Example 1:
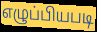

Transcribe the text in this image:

எழுப்பியபடி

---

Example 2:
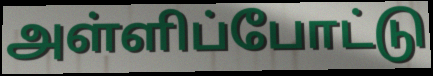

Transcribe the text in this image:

அள்ளிப்போட்டு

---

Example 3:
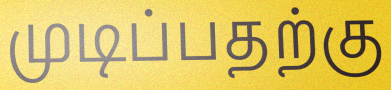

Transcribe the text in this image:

முடிப்பதற்கு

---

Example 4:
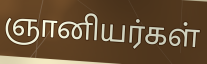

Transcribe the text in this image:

ஞானியர்கள்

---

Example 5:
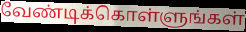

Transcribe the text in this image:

வேண்டிக்கொள்ளுங்கள்